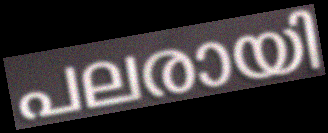
പലരായി